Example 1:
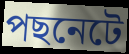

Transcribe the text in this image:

পছনেটে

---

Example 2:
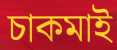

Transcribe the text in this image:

চাকমাই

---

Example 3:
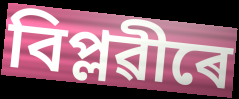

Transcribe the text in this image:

বিপ্লৱীৰে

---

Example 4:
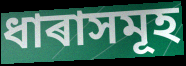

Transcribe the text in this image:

ধাৰাসমূহ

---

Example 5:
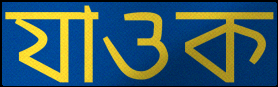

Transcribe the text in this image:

যাওক